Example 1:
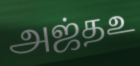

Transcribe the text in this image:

அஜ்தஉ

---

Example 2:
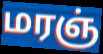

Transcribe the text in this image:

மரஞ்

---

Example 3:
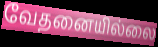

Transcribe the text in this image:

வேதனையில்லை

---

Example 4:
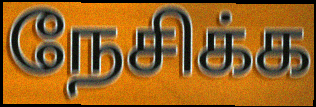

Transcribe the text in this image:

நேசிக்க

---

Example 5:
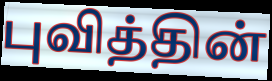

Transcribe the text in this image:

புவித்தின்